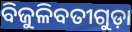
ବିଜୁଳିବତୀଗୁଡ଼ା